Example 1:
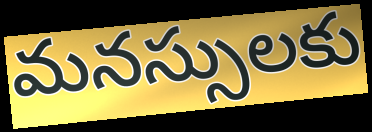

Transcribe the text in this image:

మనస్సులకు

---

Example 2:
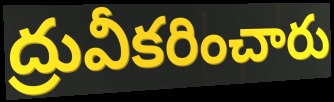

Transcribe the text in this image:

ద్రువీకరించారు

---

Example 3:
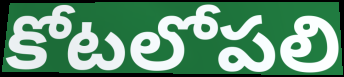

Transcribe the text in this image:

కోటలోపలి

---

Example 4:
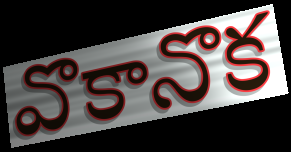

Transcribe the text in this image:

వొకానొక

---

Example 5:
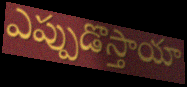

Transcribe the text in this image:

ఎప్పుడొస్తాయా